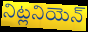
నిట్లనియెన్